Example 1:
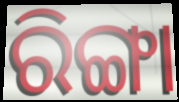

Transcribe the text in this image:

ରିଙ୍ଗା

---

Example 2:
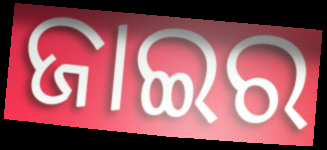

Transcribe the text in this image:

ଜାଇର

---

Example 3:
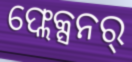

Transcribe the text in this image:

ଫ୍ଲେକ୍ସନର୍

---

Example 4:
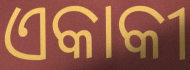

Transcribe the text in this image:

ଏକାକୀ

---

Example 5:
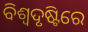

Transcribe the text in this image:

ବିଶ୍ଵଦୃଷ୍ଟିରେ